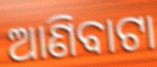
ଆଣିବାଟା